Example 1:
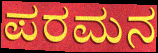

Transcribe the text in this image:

ಪರಮನ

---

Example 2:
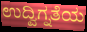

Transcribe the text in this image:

ಉದ್ವಿಗ್ನತೆಯ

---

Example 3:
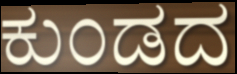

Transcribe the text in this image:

ಕುಂಡದ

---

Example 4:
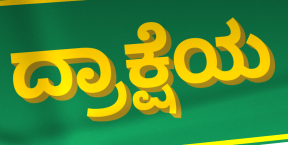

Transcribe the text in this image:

ದ್ರಾಕ್ಷೆಯ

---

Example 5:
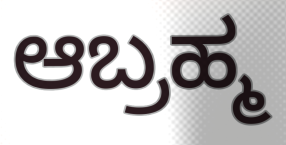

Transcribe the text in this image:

ಆಬ್ರಹ್ಮ